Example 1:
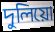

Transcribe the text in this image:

দুলিয়ো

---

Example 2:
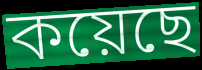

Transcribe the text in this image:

কয়েছে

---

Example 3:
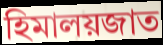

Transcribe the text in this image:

হিমালয়জাত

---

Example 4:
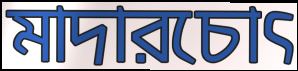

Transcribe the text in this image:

মাদারচোৎ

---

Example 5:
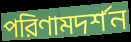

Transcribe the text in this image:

পরিণামদর্শন